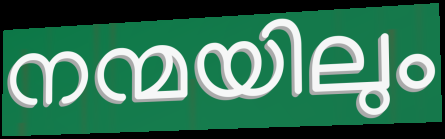
നന്മയിലും